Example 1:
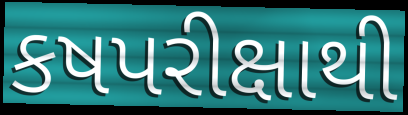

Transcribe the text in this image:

કષપરીક્ષાથી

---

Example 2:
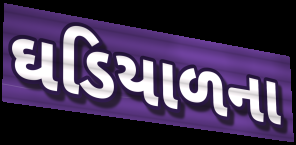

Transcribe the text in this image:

ઘડિયાળના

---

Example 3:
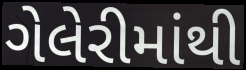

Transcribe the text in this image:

ગેલેરીમાંથી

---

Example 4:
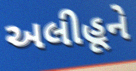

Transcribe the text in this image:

અલીહૂને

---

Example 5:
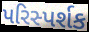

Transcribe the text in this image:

પરિસ્પર્શક